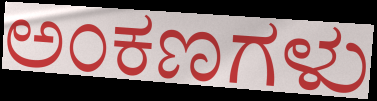
ಅಂಕಣಗಳು